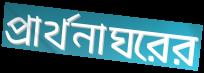
প্রার্থনাঘরের